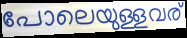
പോലെയുള്ളവര്